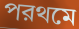
পরথমে